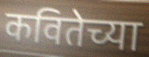
कवितेच्या